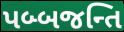
પબ્બજન્તિ